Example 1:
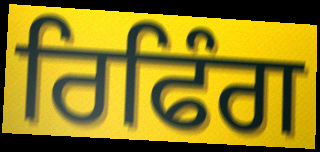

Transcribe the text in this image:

ਰਿਫਿੰਗ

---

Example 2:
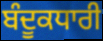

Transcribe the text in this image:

ਬੰਦੂਕਧਾਰੀ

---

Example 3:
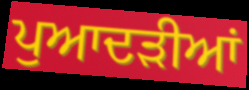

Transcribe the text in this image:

ਪੁਆਦੜੀਆਂ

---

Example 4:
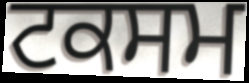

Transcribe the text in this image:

ਟਕਸਮ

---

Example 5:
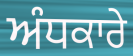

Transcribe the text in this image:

ਅੰਧਕਾਰੇ